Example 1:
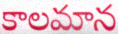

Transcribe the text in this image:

కాలమాన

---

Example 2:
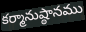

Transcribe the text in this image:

కర్మానుష్ఠానము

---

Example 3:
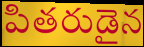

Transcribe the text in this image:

పితరుడైన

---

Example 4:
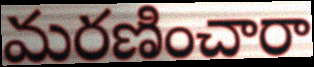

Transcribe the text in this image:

మరణించారా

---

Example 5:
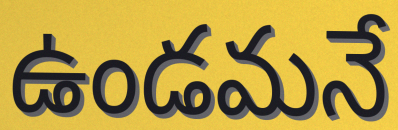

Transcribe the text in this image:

ఉండమనే